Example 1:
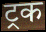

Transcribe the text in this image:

ट्रक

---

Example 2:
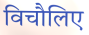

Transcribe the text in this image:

विचौलिए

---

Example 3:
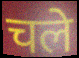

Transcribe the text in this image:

चले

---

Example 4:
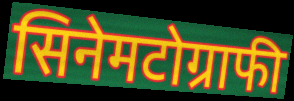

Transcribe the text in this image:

सिनेमटोग्राफी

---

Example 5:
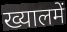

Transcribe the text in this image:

ख्यालमें